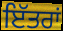
ਇੱਤਰਾਂ